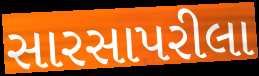
સારસાપરીલા